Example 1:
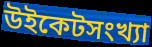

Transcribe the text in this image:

উইকেটসংখ্যা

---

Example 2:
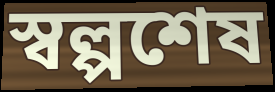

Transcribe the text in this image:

স্বল্পশেষ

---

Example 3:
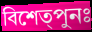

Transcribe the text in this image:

বিশেত্পুনঃ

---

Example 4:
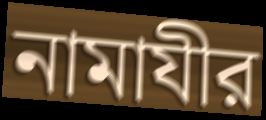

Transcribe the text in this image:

নামাযীর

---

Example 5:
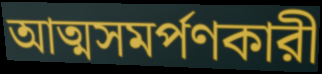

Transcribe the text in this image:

আত্মসমর্পণকারী